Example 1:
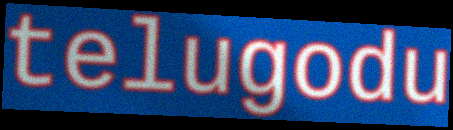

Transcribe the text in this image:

telugodu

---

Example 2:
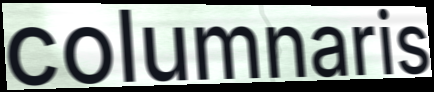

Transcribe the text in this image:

columnaris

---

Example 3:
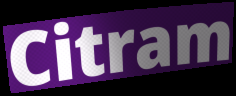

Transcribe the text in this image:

Citram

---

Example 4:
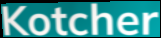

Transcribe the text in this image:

Kotcher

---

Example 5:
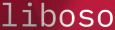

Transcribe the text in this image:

liboso